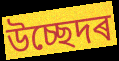
উচ্ছেদৰ